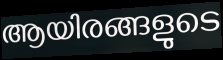
ആയിരങ്ങളുടെ